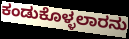
ಕಂಡುಕೊಳ್ಳಲಾರನು